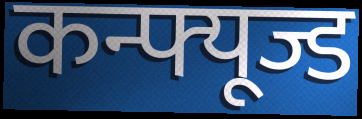
कन्फ्यूज्ड